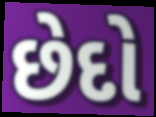
છેદો